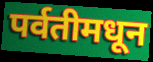
पर्वतीमधून